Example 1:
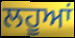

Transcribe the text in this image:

ਲਹੂਆਂ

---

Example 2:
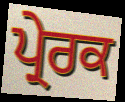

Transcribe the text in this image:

ਪ੍ਰੇਰਕ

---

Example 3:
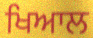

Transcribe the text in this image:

ਖਿਆਲ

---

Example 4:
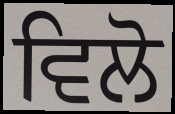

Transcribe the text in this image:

ਵਿਲੋ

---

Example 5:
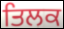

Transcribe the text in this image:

ਤਿਲਕ